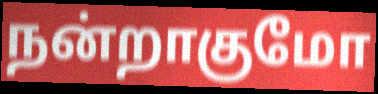
நன்றாகுமோ